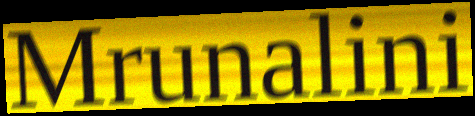
Mrunalini